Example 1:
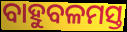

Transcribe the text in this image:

ବାହୁବଳମସ୍ତ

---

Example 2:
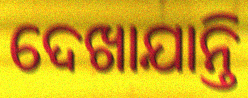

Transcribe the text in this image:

ଦେଖାଯାନ୍ତି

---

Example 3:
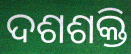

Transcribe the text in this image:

ଦଶଶକ୍ତି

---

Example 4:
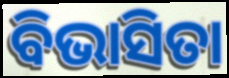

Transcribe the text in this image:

ବିଭାସିତା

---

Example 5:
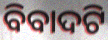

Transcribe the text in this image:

ବିବାଦଟି